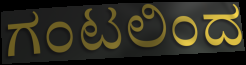
ಗಂಟಲಿಂದ